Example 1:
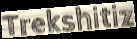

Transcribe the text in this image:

Trekshitiz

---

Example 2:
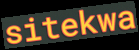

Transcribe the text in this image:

sitekwa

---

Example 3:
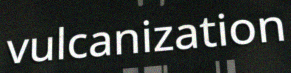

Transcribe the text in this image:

vulcanization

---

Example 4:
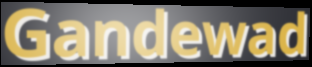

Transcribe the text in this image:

Gandewad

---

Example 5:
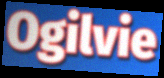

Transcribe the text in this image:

Ogilvie